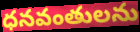
ధనవంతులను